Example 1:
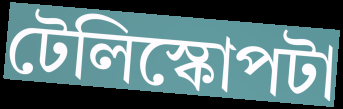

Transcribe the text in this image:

টেলিস্কোপটা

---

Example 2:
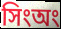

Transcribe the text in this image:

সিংঅং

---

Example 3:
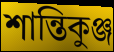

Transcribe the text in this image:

শান্তিকুঞ্জ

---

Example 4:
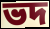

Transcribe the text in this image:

ভদ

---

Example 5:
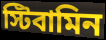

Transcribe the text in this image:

স্টিবামিন